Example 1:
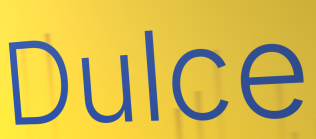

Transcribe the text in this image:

Dulce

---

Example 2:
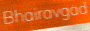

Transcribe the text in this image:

Bhairavgad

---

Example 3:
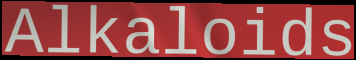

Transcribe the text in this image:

Alkaloids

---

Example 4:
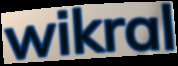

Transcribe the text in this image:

wikral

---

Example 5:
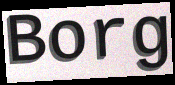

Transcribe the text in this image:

Borg